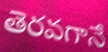
తెరవగానే